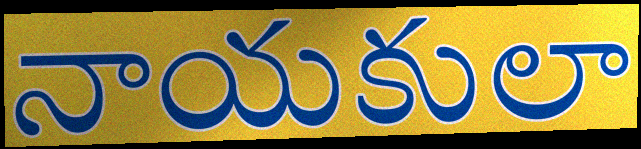
నాయకులా